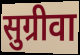
सुग्रीवा